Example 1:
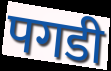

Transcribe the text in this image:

पगडी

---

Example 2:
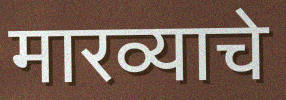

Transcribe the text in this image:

मारव्याचे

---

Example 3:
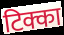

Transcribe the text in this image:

टिक्का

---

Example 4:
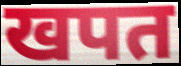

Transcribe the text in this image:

खपत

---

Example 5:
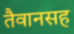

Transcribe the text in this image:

तैवानसह